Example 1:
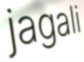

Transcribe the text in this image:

jagali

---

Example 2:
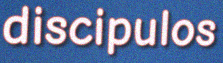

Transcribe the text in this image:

discipulos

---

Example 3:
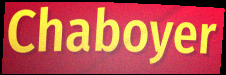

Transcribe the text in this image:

Chaboyer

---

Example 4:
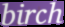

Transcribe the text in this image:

birch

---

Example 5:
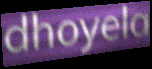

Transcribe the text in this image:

dhoyela